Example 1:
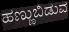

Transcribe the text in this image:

ಹಣ್ಣುಬಿಡುವ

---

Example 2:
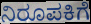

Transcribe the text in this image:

ನಿರೂಪಕಿಗೆ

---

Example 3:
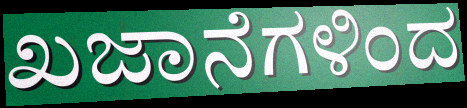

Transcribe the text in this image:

ಖಜಾನೆಗಳಿಂದ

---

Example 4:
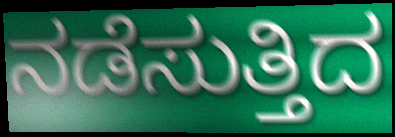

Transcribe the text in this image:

ನಡೆಸುತ್ತಿದ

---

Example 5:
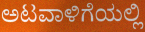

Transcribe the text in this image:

ಅಟವಾಳಿಗೆಯಲ್ಲಿ